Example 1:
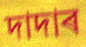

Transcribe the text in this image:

দাদাৰ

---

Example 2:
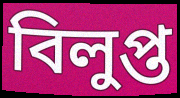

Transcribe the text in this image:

বিলুপ্ত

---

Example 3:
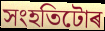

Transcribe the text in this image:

সংহতিটোৰ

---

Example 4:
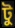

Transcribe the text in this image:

টু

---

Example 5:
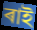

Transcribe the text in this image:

ৰাই